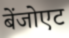
बेंजोएट